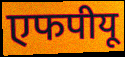
एफपीयू